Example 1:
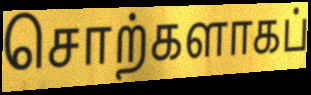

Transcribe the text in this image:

சொற்களாகப்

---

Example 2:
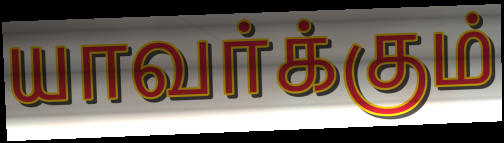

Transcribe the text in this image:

யாவர்க்கும்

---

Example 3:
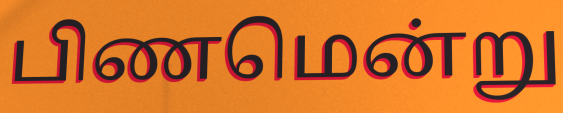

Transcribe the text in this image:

பிணமென்று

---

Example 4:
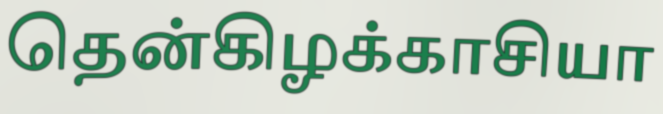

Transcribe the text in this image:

தென்கிழக்காசியா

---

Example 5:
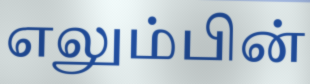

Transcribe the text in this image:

எலும்பின்